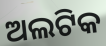
ଅଲଟିକ